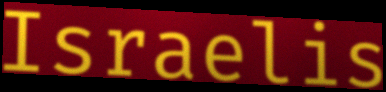
Israelis